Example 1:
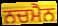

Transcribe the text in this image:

ਨਚਮੈਨ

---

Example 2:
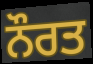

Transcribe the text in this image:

ਨੌਰਤ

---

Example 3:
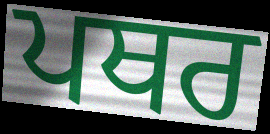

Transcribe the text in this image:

ਪਥਰ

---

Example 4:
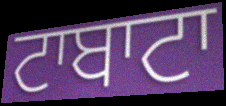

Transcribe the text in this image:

ਟਾਬਾਟਾ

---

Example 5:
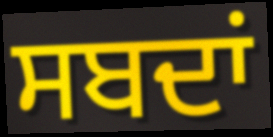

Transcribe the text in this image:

ਸਬਦਾਂ